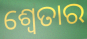
ଶ୍ଵେତାର